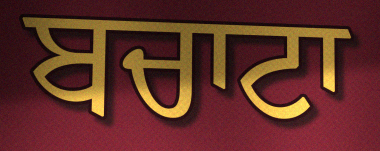
ਬਚਾਟਾ